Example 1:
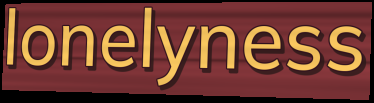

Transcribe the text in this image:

lonelyness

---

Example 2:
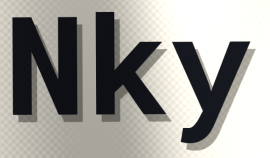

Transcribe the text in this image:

Nky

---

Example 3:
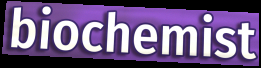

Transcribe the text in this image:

biochemist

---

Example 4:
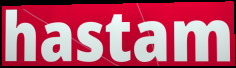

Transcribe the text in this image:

hastam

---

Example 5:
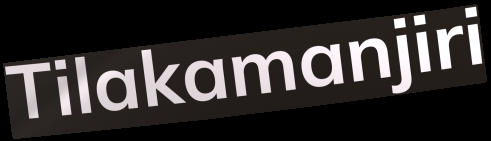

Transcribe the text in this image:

Tilakamanjiri